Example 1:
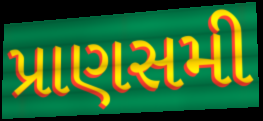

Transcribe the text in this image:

પ્રાણસમી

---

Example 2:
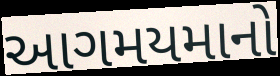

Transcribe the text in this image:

આગમયમાનો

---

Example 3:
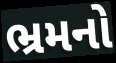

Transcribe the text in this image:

ભ્રમનો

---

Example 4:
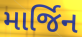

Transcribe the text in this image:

માર્જિન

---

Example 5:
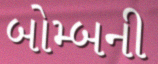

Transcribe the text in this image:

બોમ્બની